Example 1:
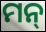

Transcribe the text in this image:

ମନ୍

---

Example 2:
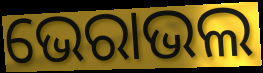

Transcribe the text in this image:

ଭେରାଭଲ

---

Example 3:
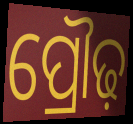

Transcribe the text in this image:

ପ୍ରୌଢ଼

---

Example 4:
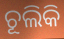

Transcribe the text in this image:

ଚୂଲିକି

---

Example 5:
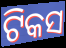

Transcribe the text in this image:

ଟିକସ